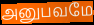
அனுபவமே